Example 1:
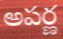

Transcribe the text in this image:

అపర్ణ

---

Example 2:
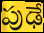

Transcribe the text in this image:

పుఢే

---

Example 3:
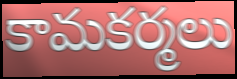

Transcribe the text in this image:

కామకర్మలు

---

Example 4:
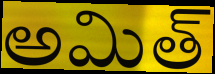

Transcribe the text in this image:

అమిత్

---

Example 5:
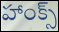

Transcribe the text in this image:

హాంక్స్